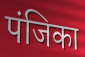
पंजिका